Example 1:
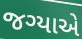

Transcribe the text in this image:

જગ્યાએ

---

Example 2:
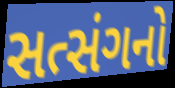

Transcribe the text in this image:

સત્સંગનો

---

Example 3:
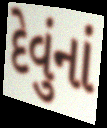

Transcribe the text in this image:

દેવુંનાં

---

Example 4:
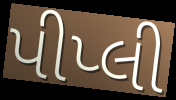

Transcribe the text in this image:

પીપ્લી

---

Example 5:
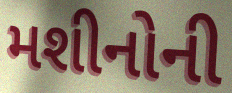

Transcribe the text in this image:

મશીનોની